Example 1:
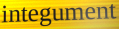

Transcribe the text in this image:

integument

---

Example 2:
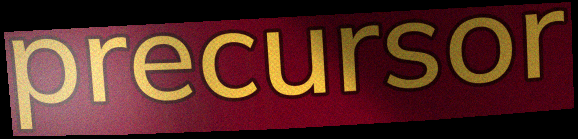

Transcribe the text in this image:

precursor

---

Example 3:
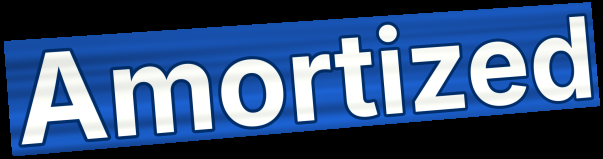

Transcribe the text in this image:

Amortized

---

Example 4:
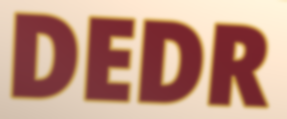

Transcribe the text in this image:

DEDR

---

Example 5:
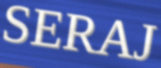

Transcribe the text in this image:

SERAJ